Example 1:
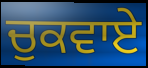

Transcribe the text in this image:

ਚੁਕਵਾਏ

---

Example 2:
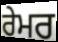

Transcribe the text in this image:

ਰੇਮਰ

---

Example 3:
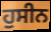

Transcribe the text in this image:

ਹੁਸੀਨ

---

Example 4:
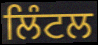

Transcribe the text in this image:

ਲਿੰਟਲ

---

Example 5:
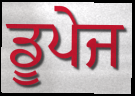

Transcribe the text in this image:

ਡੂਪੇਜ